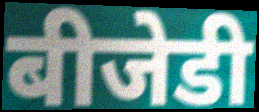
बीजेडी